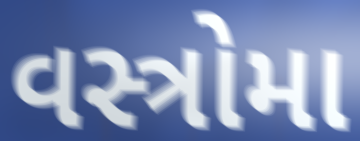
વસ્ત્રોમા